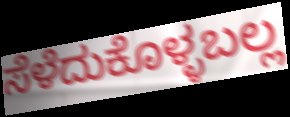
ಸೆಳೆದುಕೊಳ್ಳಬಲ್ಲ